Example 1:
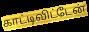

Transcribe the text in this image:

காட்டிவிட்டேன்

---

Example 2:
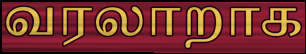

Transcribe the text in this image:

வரலாறாக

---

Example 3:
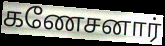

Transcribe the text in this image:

கணேசனார்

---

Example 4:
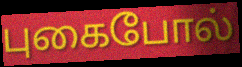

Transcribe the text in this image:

புகைபோல்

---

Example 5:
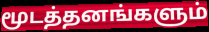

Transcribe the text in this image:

மூடத்தனங்களும்